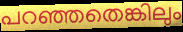
പറഞ്ഞതെങ്കിലും